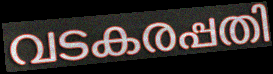
വടകരപ്പതി